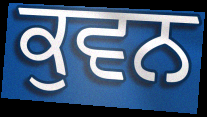
ਕੁਵਨ